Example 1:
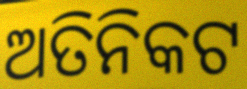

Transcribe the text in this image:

ଅତିନିକଟ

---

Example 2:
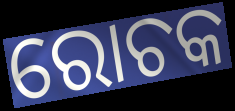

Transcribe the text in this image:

ରୋଚକ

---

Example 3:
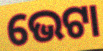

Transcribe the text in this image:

ଭେଟା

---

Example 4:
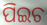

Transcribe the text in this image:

ପିଇଚ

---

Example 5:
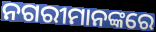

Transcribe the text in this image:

ନଗରୀମାନଙ୍କରେ